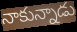
నాకున్నాడు